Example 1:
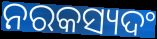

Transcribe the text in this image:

ନରକସ୍ୟଦଂ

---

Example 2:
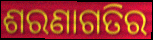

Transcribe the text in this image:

ଶରଣାଗତିର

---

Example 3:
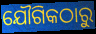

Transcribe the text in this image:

ଯୌଗିକଠାରୁ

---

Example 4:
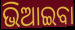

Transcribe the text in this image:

ଭିଆଇବା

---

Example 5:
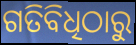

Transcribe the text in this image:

ଗତିବିଧିଠାରୁ